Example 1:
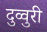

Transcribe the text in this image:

दुव्वुरी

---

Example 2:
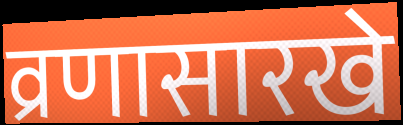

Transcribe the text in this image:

व्रणासारखे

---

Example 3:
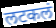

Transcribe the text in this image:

लटकलं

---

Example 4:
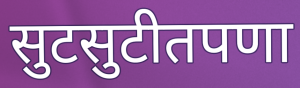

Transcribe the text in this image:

सुटसुटीतपणा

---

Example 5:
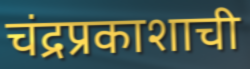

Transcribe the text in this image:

चंद्रप्रकाशाची